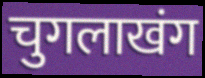
चुगलाखंग